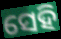
ସେହି